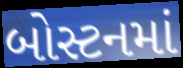
બોસ્ટનમાં